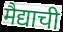
मैद्याची